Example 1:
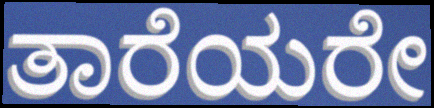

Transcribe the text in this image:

ತಾರೆಯರೇ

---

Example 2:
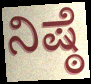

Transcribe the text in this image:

ನಿಷ್ಠೆ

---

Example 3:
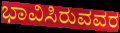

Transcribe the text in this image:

ಭಾವಿಸಿರುವವರ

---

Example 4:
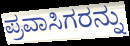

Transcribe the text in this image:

ಪ್ರವಾಸಿಗರನ್ನು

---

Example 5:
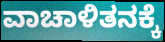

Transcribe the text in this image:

ವಾಚಾಳಿತನಕ್ಕೆ